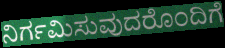
ನಿರ್ಗಮಿಸುವುದರೊಂದಿಗೆ